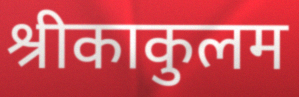
श्रीकाकुलम